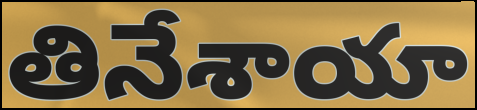
తినేశాయా